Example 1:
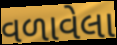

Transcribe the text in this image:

વળાવેલા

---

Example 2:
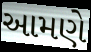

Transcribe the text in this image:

આમણે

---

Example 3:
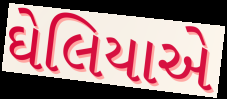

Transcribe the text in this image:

ઘેલિયાએ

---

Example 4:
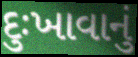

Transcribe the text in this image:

દુઃખાવાનું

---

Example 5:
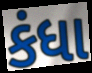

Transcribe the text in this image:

કંધા